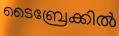
ടൈബ്രേക്കിൽ